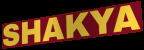
SHAKYA